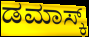
ಡಮಾಸ್ಕ್